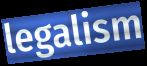
legalism